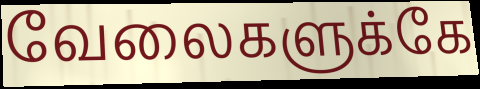
வேலைகளுக்கே